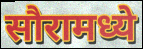
सौरामध्ये